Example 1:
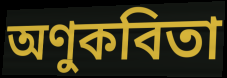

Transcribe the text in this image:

অণুকবিতা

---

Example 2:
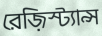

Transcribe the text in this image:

রেজ়িস্ট্যান্স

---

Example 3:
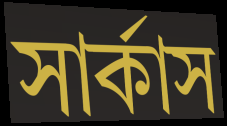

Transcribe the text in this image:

সার্কাস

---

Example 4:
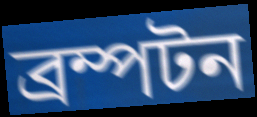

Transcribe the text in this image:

ব্রম্পটন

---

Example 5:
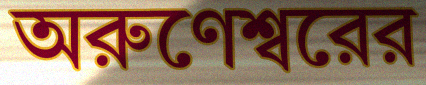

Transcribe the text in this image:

অরুণেশ্বরের